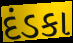
દંડકા